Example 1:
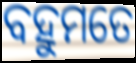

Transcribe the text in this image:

ବହୁମତେ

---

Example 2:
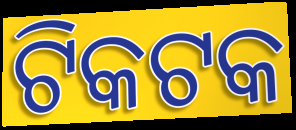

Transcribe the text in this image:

ଟିକଟକ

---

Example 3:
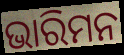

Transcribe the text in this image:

ଭାରିମନ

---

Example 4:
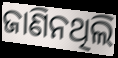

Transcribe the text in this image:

ଜାଣିନଥିଲି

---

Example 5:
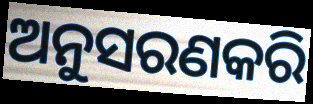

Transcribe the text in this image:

ଅନୁସରଣକରି